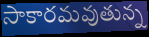
సాకారమవుతున్న